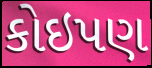
કોઇપણ